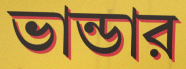
ভান্ডার